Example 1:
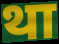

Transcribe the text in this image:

था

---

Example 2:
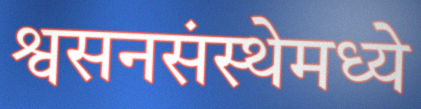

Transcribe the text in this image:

श्वसनसंस्थेमध्ये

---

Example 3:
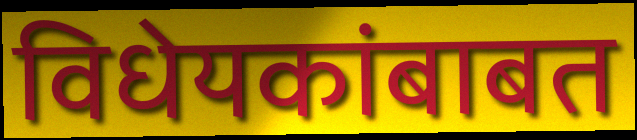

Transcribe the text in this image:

विधेयकांबाबत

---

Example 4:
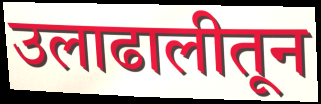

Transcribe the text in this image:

उलाढालीतून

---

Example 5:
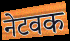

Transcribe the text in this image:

नेटवक